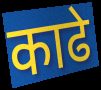
काढे